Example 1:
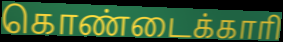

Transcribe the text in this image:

கொண்டைக்காரி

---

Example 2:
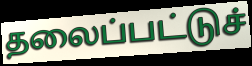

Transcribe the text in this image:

தலைப்பட்டுச்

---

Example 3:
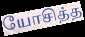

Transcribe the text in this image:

யோசித்த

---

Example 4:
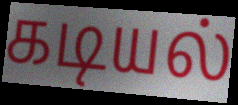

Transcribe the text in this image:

கடியல்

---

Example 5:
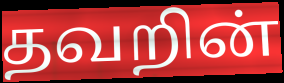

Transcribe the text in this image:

தவறின்